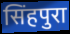
सिंहपुरा